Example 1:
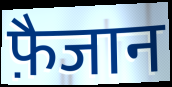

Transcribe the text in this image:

फ़ैजान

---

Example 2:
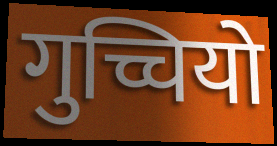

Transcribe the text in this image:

गुच्चियो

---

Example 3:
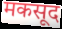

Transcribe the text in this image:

मकसूद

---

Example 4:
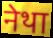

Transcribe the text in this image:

नेथा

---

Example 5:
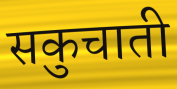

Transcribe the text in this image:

सकुचाती